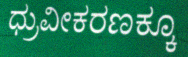
ಧ್ರುವೀಕರಣಕ್ಕೂ